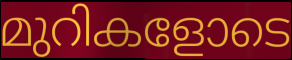
മുറികളോടെ